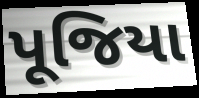
પૂજિયા